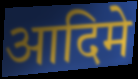
आदिमे